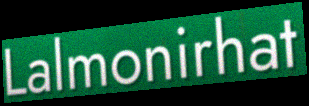
Lalmonirhat